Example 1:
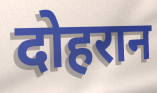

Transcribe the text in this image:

दोहरान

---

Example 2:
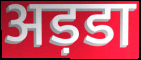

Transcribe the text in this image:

अड़डा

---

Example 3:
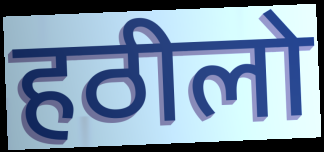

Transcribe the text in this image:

हठीलो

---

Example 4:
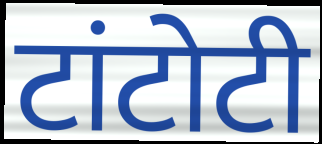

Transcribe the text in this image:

टांटोटी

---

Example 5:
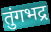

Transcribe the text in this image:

तुंगभद्र